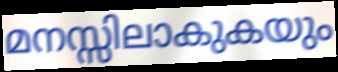
മനസ്സിലാകുകയും